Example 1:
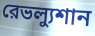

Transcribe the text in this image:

রেভল্যুশান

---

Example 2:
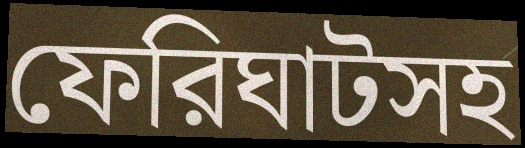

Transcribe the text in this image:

ফেরিঘাটসহ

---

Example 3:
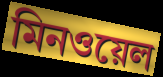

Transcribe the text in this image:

মিনওয়েল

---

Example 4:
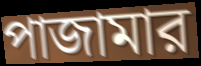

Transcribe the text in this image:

পাজামার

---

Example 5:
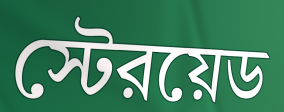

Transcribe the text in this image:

স্টেরয়েড